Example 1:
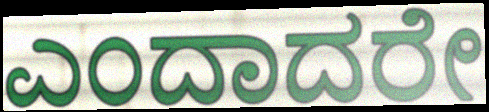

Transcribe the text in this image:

ಎಂದಾದರೇ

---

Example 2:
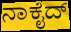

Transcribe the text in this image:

ನಾಕೈದ್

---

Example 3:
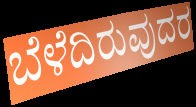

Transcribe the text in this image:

ಬೆಳೆದಿರುವುದರ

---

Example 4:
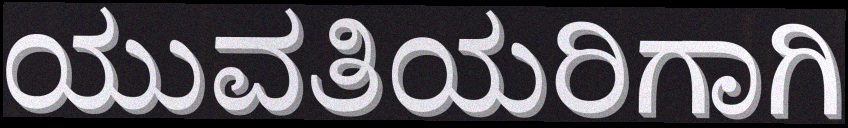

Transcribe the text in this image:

ಯುವತಿಯರಿಗಾಗಿ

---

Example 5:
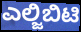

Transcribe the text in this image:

ಎಲ್ಜಿಬಿಟಿ